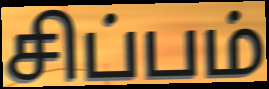
சிப்பம்